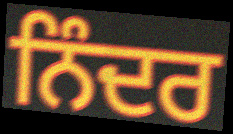
ਨਿੰਦਰ